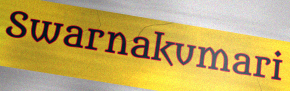
Swarnakumari